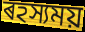
ৰহস্যময়